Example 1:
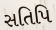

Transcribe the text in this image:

સતિપિ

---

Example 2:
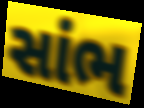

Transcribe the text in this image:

સાંભ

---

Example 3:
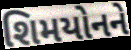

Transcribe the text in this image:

શિમયોનને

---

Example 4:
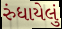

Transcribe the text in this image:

રુંધાયેલું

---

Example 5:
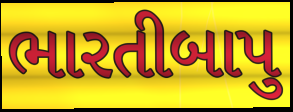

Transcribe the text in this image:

ભારતીબાપુ